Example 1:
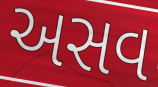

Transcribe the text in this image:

અસવ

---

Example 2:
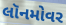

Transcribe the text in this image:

લૉનમોવર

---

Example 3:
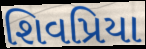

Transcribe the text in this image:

શિવપ્રિયા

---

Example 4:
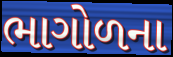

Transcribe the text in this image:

ભાગોળના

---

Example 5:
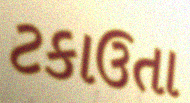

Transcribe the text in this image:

ટકાઉતા